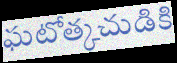
ఘటోత్కచుడికి